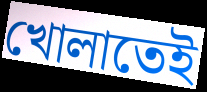
খোলাতেই